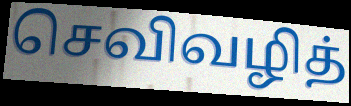
செவிவழித்